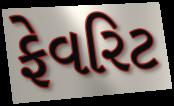
ફેવરિટ